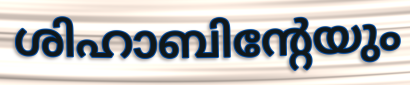
ശിഹാബിന്റേയും